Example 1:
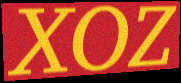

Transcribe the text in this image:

XOZ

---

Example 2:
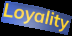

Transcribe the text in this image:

Loyality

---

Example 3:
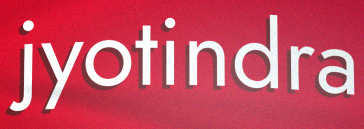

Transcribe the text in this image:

jyotindra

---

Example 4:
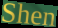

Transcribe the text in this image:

Shen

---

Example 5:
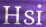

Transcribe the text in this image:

Hsi